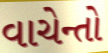
વાચેન્તો